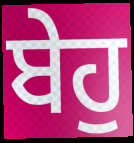
ਬੇਹੁ